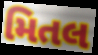
મિતલ